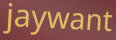
jaywant